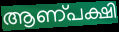
ആണ്പക്ഷി